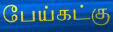
பேய்கட்கு